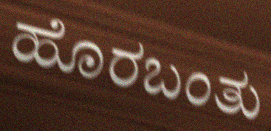
ಹೊರಬಂತು